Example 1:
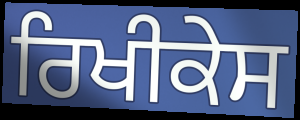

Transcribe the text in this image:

ਰਿਖੀਕੇਸ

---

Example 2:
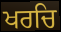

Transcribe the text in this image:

ਖਰਚਿ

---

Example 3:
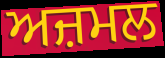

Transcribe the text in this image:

ਅਜ਼ਮਲ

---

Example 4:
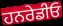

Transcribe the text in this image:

ਹਨਰੇਡੀਓ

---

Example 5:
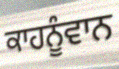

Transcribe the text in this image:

ਕਾਹਨੂੰਵਾਨ